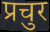
प्रचुर